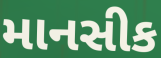
માનસીક